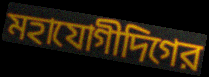
মহাযোগীদিগের